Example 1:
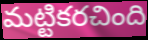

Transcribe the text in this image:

మట్టికరచింది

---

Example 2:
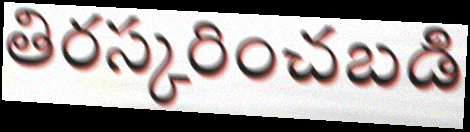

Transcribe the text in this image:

తిరస్కరించబడి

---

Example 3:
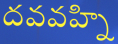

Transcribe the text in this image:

దవవహ్ని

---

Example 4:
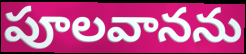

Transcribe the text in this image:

పూలవానను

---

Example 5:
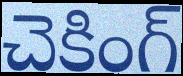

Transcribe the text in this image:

చెకింగ్